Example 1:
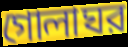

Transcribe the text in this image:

গোলাঘর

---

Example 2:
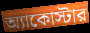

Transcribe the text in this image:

অ্যাকোস্টার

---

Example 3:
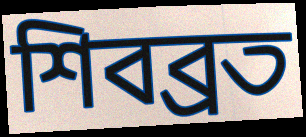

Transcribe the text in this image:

শিবব্রত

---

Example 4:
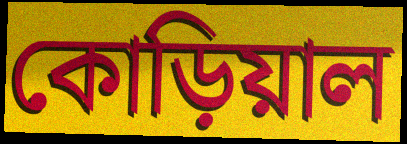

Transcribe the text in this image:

কোড়িয়াল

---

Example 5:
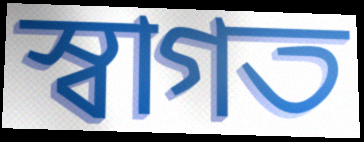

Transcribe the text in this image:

স্বাগত